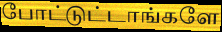
போட்டுட்டாங்களே